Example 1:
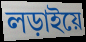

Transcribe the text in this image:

লড়াইয়ে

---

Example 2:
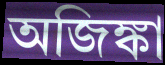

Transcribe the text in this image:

অজিঙ্কা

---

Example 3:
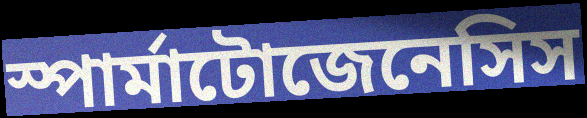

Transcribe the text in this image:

স্পার্মাটোজেনেসিস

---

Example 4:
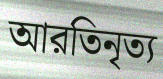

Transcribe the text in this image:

আরতিনৃত্য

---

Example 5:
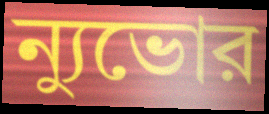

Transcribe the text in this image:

ন্যুভোর